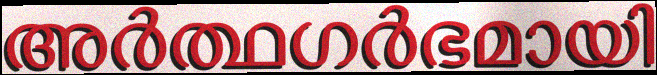
അർത്ഥഗർഭമായി